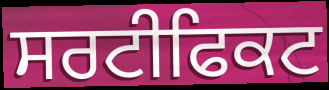
ਸਰਟੀਫਿਕਟ